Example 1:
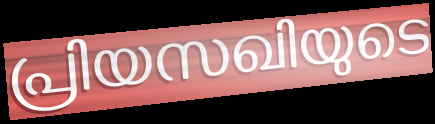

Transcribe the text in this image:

പ്രിയസഖിയുടെ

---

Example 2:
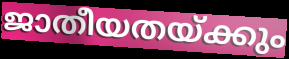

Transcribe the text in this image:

ജാതീയതയ്ക്കും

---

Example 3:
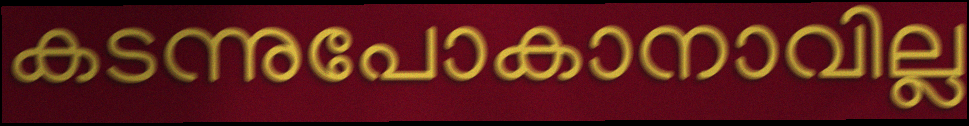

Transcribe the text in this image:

കടന്നുപോകാനാവില്ല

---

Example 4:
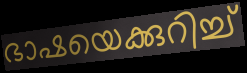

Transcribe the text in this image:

ഭാഷയെക്കുറിച്ച്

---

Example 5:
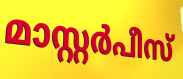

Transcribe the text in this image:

മാസ്റ്റർപീസ്